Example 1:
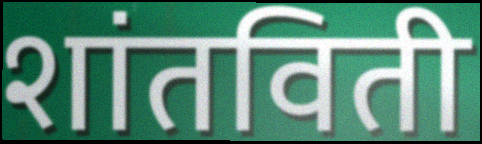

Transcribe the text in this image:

शांतविती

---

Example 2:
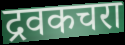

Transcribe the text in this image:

द्रवकचरा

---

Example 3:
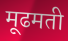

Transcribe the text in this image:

मूढमती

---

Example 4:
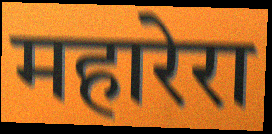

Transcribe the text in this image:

महारेरा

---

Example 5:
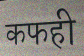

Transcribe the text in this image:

कफही